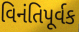
વિનંતિપૂર્વક